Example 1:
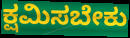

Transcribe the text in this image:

ಕ್ಷಮಿಸಬೇಕು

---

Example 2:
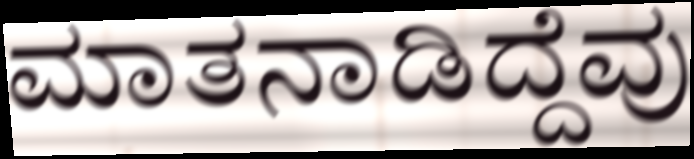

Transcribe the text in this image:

ಮಾತನಾಡಿದ್ದೆವು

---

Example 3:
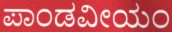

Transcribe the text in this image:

ಪಾಂಡವೀಯಂ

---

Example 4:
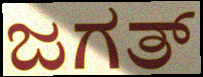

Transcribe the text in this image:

ಜಗತ್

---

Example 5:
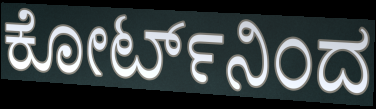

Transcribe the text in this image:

ಕೋರ್ಟ್‌ನಿಂದ